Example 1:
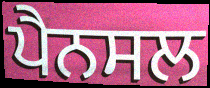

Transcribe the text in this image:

ਪੈਨਸਲ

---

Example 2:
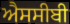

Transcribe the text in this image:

ਐਸਸੀਬੀ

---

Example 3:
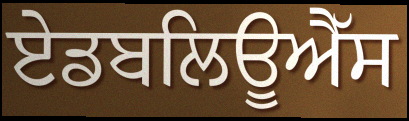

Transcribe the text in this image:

ਏਡਬਲਿਊਐੱਸ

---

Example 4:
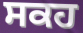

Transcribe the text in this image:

ਸਕਹ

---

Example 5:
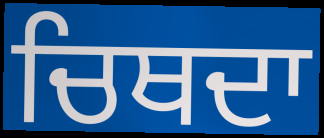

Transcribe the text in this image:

ਚਿਥਦਾ